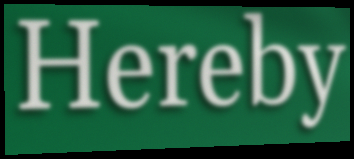
Hereby